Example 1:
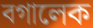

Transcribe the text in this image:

বগালেক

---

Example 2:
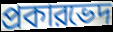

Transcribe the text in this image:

প্রকারভেদ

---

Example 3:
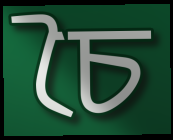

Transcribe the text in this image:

চৈ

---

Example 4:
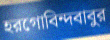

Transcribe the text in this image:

হরগোবিন্দবাবুর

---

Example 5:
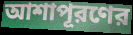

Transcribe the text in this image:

আশাপূরণের